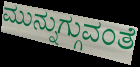
ಮುನ್ನುಗ್ಗುವಂತೆ